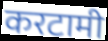
करटामी